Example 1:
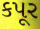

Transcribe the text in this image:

કપૂર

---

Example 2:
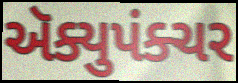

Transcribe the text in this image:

ઍક્યુપંક્ચર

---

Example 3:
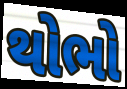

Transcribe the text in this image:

થોભો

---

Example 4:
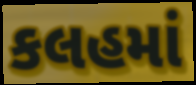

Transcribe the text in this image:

કલહમાં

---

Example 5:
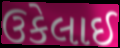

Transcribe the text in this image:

ઉકેલાઈ